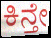
ಕಿನ್ತೇ